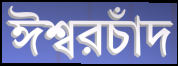
ঈশ্বরচাঁদ